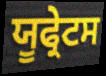
ਯੂਫ੍ਰੇਟਸ